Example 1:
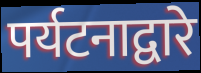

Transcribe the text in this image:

पर्यटनाद्वारे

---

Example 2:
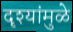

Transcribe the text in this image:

दृश्यांमुळे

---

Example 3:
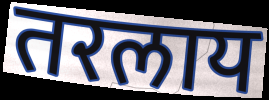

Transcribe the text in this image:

तरलाय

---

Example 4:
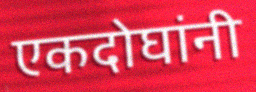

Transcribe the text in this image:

एकदोघांनी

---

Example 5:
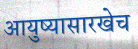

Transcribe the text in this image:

आयुष्यासारखेच